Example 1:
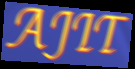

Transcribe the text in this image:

AJIT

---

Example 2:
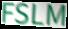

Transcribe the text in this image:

FSLM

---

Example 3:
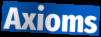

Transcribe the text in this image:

Axioms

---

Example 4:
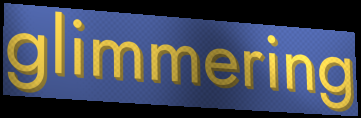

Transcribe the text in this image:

glimmering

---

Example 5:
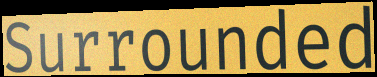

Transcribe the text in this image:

Surrounded